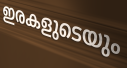
ഇരകളുടെയും